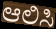
ಆಲಿಸಿ